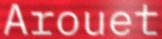
Arouet